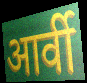
आर्वी